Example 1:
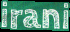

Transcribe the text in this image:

irani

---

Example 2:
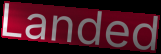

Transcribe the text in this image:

Landed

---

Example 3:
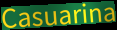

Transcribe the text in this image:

Casuarina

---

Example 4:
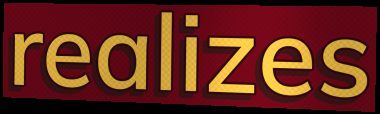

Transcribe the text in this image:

realizes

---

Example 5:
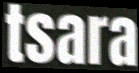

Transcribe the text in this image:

tsara